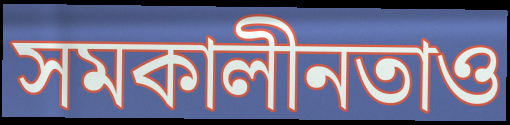
সমকালীনতাও